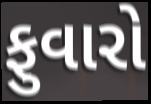
ફુવારો